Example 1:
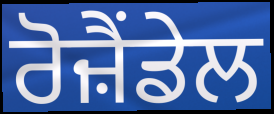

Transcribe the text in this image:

ਰੋਜ਼ੈਂਡੇਲ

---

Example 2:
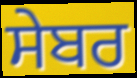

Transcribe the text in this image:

ਸੇਬਰ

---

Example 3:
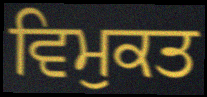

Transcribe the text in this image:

ਵਿਮੁਕਤ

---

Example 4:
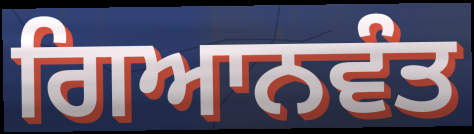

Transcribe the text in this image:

ਗਿਆਨਵੰਤ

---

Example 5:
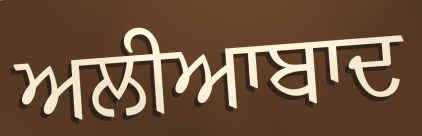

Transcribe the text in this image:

ਅਲੀਆਬਾਦ